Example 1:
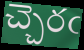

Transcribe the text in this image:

చ్చెరఁ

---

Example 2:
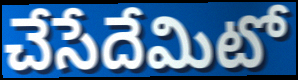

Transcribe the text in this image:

చేసేదేమిటో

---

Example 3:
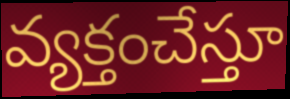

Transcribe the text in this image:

వ్యక్తంచేస్తూ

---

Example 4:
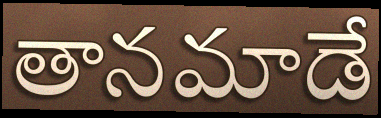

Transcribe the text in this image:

తానమాడే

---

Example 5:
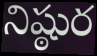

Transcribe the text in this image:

నిష్ఠుర